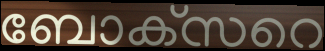
ബോക്‌സറെ